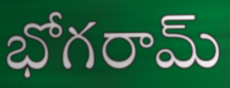
భోగరామ్